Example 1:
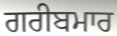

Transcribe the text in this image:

ਗਰੀਬਮਾਰ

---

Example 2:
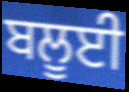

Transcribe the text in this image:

ਬਲੂਈ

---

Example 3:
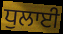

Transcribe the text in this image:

ਧੁਲਾਈ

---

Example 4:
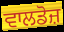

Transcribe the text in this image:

ਵਾਲਡੋਜ਼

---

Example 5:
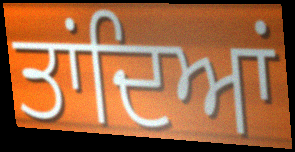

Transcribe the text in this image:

ਤਾਂਦਿਆਂ